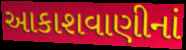
આકાશવાણીનાં